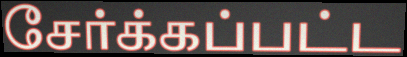
சேர்க்கப்பட்ட